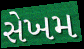
સેખમ